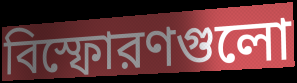
বিস্ফোরণগুলো